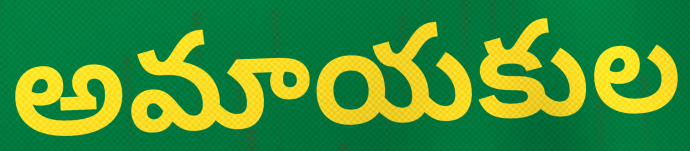
అమాయకుల